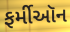
ફર્મીઑન